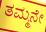
ತಮ್ಮನೇ